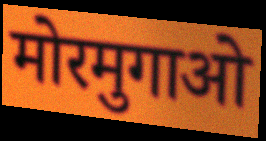
मोरमुगाओ